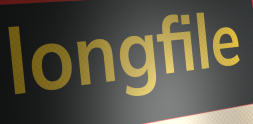
longfile